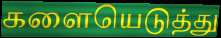
களையெடுத்து